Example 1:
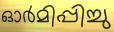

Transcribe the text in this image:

ഓർമിപ്പിച്ചു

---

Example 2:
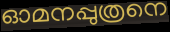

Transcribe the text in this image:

ഓമനപ്പുത്രനെ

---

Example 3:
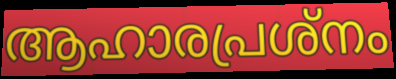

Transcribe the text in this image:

ആഹാരപ്രശ്നം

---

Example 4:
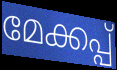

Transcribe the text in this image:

മേക്കപ്പ്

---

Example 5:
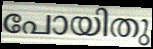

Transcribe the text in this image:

പോയിതു